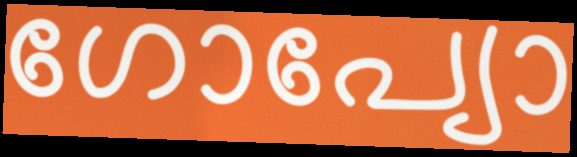
ഗോപ്യോ